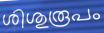
ശിശുരൂപം